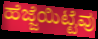
ಹೆಜ್ಜೆಯಿಟ್ಟೆವು